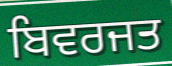
ਬਿਵਰਜਤ